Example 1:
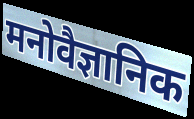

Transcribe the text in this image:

मनोवैज्ञानिक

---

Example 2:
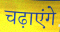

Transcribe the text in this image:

चढ़ाएंगे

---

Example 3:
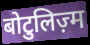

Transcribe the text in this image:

बोटुलिज़्म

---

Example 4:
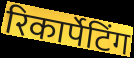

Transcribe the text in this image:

रिकार्पेटिंग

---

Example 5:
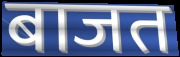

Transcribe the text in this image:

बाजत